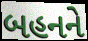
બહનને